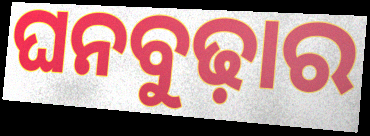
ଘନବୁଢ଼ାର